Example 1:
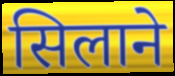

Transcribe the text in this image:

सिलाने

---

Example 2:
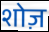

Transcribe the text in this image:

शोज़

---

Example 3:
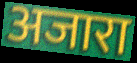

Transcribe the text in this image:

अजारा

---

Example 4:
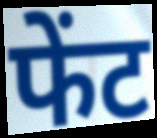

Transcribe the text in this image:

फेंट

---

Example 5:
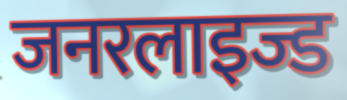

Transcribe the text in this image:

जनरलाइज्ड